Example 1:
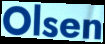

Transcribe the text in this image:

Olsen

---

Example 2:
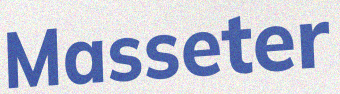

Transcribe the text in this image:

Masseter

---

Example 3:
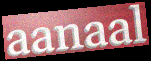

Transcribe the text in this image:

aanaal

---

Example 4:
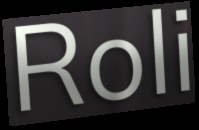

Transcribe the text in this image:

Roli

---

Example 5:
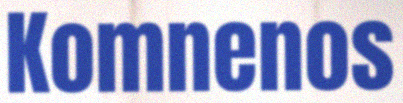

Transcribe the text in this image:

Komnenos